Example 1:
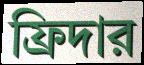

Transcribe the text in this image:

ফ্রিদার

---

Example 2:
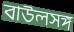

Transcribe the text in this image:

বাউলসঙ্গ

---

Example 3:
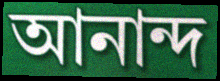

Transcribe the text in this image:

আনান্দ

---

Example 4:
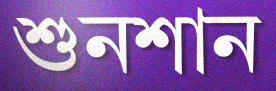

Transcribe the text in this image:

শুনশান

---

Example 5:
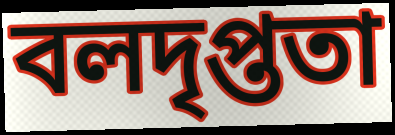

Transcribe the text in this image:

বলদৃপ্ততা